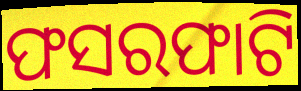
ଫସରଫାଟି